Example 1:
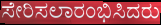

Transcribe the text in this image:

ಸೇರಿಸಲಾರಂಭಿಸಿದರು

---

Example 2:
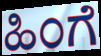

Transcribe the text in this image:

ಹಿಂಗೆ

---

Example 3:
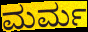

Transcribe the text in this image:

ಮರ್ಮ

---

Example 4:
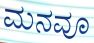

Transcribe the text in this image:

ಮನವೂ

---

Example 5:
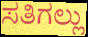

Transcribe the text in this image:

ಸತಿಗಲ್ಲು